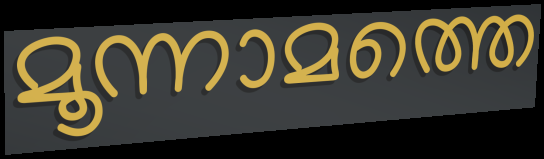
മൂന്നാമത്തെ